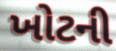
ખોટની